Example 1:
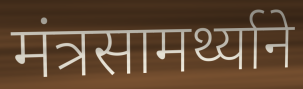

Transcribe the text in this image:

मंत्रसामर्थ्याने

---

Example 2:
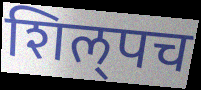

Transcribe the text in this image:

शिल्पच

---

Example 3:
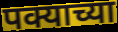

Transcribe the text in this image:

पक्याच्या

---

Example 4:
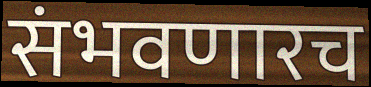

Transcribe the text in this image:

संभवणारच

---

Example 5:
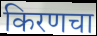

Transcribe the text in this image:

किरणचा